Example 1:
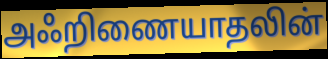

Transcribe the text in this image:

அஃறிணையாதலின்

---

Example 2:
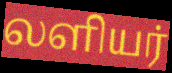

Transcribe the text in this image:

லளியர்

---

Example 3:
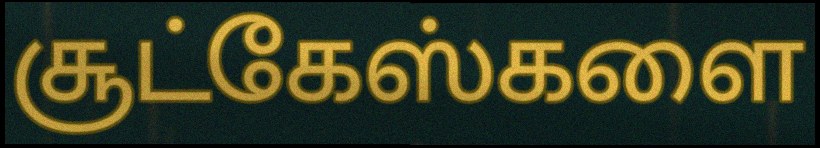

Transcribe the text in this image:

சூட்கேஸ்களை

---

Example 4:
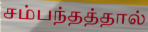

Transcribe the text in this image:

சம்பந்தத்தால்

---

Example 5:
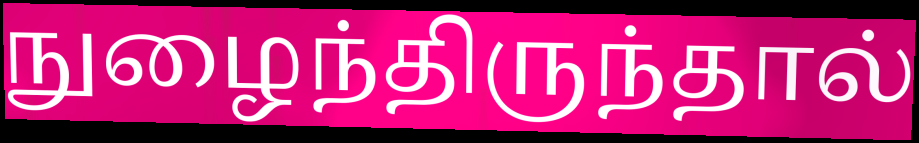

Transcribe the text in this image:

நுழைந்திருந்தால்